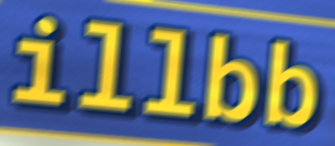
illbb